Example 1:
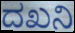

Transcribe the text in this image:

ದಖನಿ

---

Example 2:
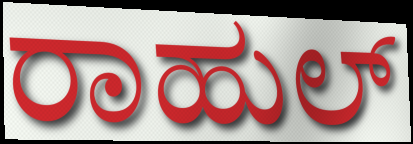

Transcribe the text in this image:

ರಾಹುಲ್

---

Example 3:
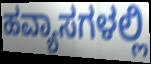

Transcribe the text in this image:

ಹವ್ಯಾಸಗಳಲ್ಲಿ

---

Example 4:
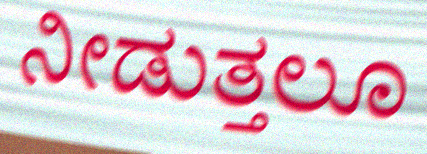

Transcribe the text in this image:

ನೀಡುತ್ತಲೂ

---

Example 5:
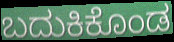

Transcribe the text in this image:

ಬದುಕಿಕೊಂಡ